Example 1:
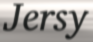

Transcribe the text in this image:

Jersy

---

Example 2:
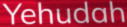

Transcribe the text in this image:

Yehudah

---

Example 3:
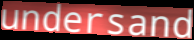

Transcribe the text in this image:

undersand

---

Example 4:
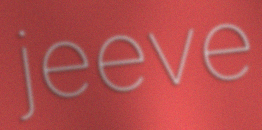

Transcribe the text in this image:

jeeve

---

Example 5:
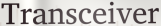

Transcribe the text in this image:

Transceiver